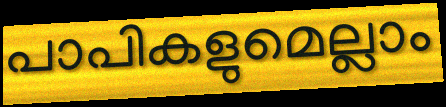
പാപികളുമെല്ലാം